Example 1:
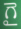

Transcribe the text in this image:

గై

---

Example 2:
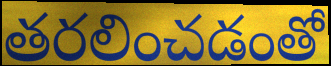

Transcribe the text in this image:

తరలించడంతో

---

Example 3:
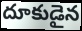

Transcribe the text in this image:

దూకుడైన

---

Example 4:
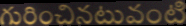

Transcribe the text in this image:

గురించినటువంటి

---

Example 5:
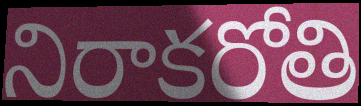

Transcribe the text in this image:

నిరాకరోతి